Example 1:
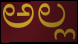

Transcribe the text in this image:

ಅಲ್ಲ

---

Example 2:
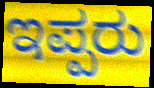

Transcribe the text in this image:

ಇಪ್ಪರು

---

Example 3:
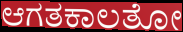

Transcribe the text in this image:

ಆಗತಕಾಲತೋ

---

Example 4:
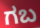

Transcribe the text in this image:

ಗಬ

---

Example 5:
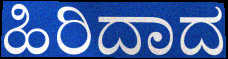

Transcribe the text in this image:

ಹಿರಿದಾದ